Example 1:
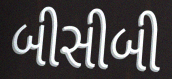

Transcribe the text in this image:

બીસીબી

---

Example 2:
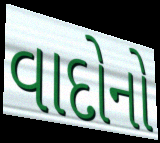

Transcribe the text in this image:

વાદોનો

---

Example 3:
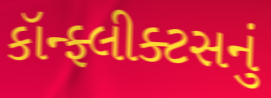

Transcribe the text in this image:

કૉન્ફ્લીક્ટસનું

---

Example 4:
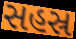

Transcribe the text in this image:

સહસ્ર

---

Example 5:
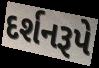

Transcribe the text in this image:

દર્શનરૂપે